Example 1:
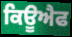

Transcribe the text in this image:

ਕਿਊਐਫ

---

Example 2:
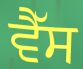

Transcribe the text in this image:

ਵੈੱਸ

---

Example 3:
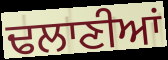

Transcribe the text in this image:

ਢਲਾਣੀਆਂ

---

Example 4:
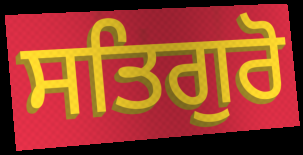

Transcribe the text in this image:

ਸਤਿਗੁਰੋ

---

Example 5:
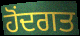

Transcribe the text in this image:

ਹੋਂਦਗਤ